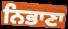
ਨਿਭਾਣਾ